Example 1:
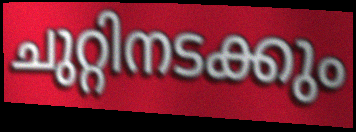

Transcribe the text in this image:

ചുറ്റിനടക്കും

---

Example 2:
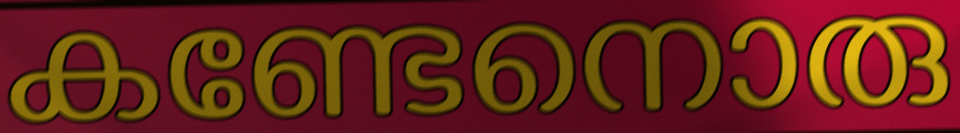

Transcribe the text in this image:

കണ്ടേനൊരു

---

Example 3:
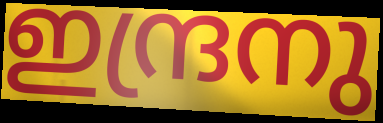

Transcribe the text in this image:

ഇന്ദ്രനു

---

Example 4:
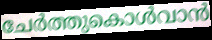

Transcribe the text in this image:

ചേർത്തുകൊൾവാൻ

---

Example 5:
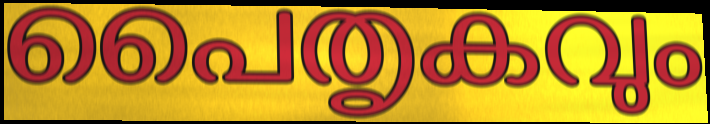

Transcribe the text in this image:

പൈതൃകവും